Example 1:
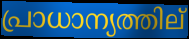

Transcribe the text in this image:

പ്രാധാന്യത്തില്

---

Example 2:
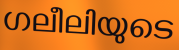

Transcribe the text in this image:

ഗലീലിയുടെ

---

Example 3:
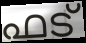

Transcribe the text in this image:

ഫട്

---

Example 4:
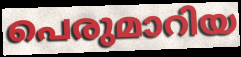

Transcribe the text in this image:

പെരുമാറിയ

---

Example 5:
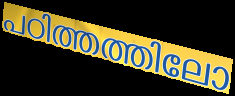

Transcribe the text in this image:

പഠിത്തത്തിലോ